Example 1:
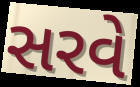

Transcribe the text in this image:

સરવે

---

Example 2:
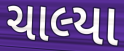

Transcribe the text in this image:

ચાલ્યા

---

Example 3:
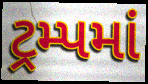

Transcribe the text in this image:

ટ્રમ્પમાં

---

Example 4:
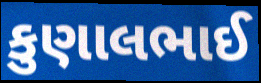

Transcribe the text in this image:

કુણાલભાઈ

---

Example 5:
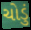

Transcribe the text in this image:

ચોડું